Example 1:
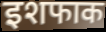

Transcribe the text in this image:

इशफाक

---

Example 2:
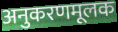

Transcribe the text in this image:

अनुकरणमूलक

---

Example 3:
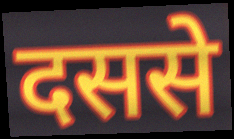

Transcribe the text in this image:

दससे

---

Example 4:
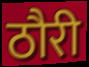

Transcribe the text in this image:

ठौरी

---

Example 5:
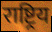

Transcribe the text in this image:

राष्ट्रिय